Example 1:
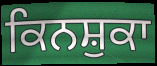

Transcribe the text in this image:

ਕਿਨਸ਼ੁਕਾ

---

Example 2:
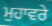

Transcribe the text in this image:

ਮੁਹਾਵਰੇ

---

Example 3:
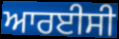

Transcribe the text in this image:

ਆਰਈਸੀ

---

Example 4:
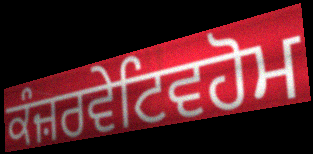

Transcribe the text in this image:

ਕੰਜ਼ਰਵੇਟਿਵਹੋਮ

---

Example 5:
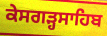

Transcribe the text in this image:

ਕੇਸਗੜ੍ਹਸਾਹਿਬ